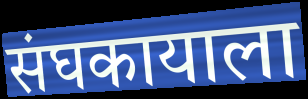
संघकायाला